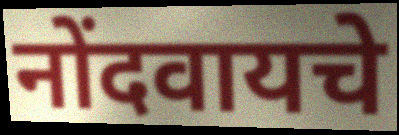
नोंदवायचे